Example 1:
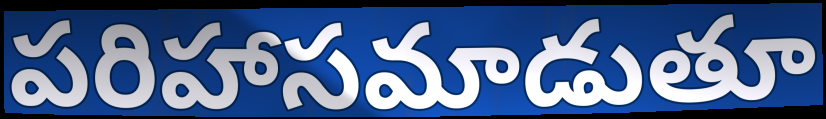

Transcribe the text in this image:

పరిహాసమాడుతూ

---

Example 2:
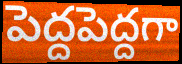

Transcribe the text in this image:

పెద్దపెద్దగా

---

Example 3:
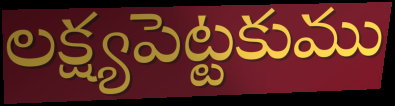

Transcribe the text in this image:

లక్ష్యపెట్టకుము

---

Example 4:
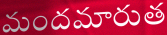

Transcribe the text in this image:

మందమారుత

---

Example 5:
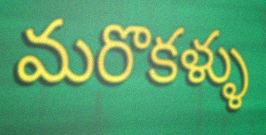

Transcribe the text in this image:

మరొకళ్ళు